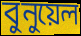
বুনুয়েল